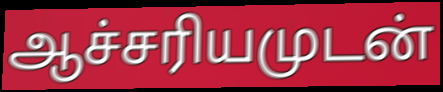
ஆச்சரியமுடன்